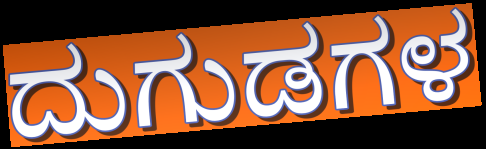
ದುಗುಡಗಳ